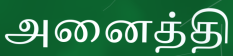
அனைத்தி